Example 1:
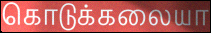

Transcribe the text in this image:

கொடுக்கலையா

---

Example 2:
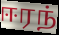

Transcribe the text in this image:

ஈரந்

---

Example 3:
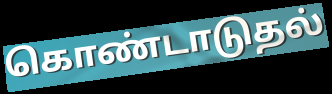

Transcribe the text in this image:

கொண்டாடுதல்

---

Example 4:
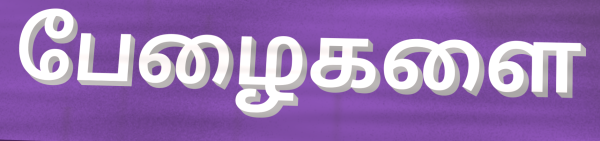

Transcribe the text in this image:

பேழைகளை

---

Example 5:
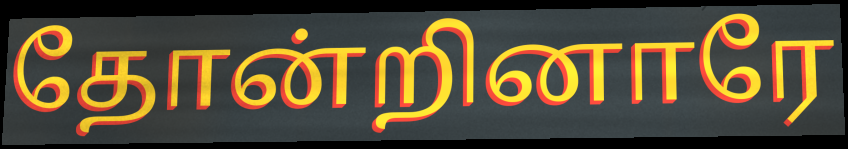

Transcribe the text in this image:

தோன்றினாரே